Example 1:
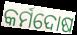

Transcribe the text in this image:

କର୍ମଦୋଷ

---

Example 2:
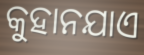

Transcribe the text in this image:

କୁହାନଯାଏ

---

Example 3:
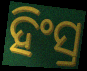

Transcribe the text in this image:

ହିଂସ୍ର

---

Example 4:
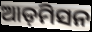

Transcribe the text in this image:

ଆଡ଼ମିସନ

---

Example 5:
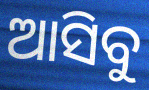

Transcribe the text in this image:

ଆସିବୁ